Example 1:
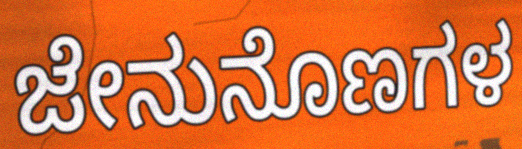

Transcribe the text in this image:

ಜೇನುನೊಣಗಳ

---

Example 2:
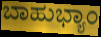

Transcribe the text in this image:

ಬಾಹುಭ್ಯಾಂ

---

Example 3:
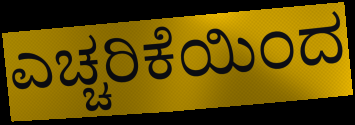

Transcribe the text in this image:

ಎಚ್ಚರಿಕೆಯಿಂದ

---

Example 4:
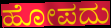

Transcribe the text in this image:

ಹೋಪದು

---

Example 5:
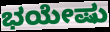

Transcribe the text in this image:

ಭಯೇಷು